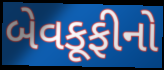
બેવકૂફીનો